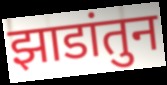
झाडांतुन